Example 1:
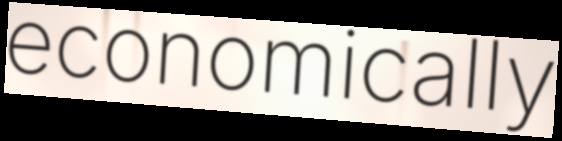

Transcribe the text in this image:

economically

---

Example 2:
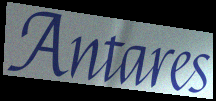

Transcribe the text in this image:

Antares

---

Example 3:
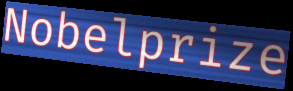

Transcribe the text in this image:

Nobelprize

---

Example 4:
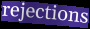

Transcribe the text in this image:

rejections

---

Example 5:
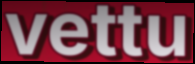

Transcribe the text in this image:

vettu